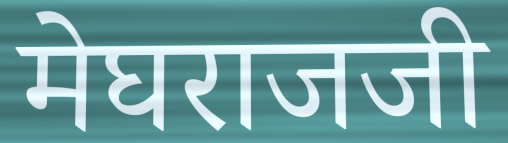
मेघराजजी